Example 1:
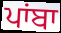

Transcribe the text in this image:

ਪਾਂਬਾ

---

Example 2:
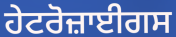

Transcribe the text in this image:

ਹੇਟਰੋਜ਼ਾਈਗਸ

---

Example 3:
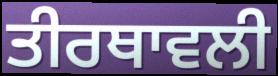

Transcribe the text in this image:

ਤੀਰਥਾਵਲੀ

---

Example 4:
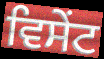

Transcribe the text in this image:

ਵਿਸੇਂਟ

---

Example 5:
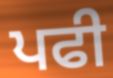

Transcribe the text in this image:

ਪਫੀ